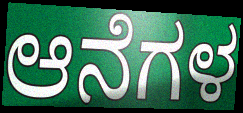
ಆನೆಗಳ